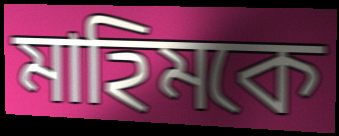
মাহিমকে